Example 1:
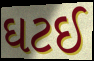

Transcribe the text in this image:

ઘટઈ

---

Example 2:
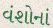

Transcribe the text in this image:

વંશોનાં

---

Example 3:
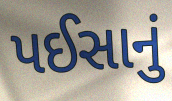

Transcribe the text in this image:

પઈસાનું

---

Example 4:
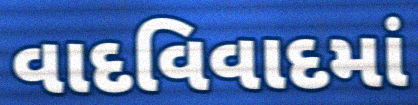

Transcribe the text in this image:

વાદવિવાદમાં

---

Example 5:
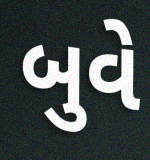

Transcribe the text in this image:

બુવે